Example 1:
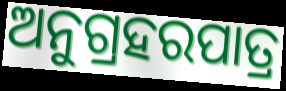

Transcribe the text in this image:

ଅନୁଗ୍ରହରପାତ୍ର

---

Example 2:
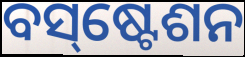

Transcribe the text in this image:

ବସ୍‌ଷ୍ଟେଶନ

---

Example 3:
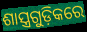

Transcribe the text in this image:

ଶାସ୍ତ୍ରଗୁଡ଼ିକରେ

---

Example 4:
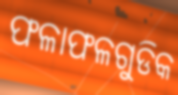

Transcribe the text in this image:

ଫଳାଫଳଗୁଡିକ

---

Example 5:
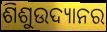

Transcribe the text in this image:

ଶିଶୁଉଦ୍ୟାନର